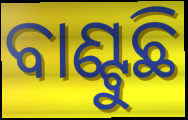
ବାଣ୍ଟୁଛି